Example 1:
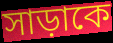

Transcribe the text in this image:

সাড়াকে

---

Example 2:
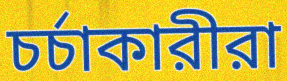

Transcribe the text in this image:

চর্চাকারীরা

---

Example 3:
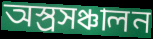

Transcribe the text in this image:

অস্ত্রসঞ্চালন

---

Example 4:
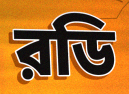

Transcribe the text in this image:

রডি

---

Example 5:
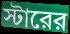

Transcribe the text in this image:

স্টারের